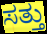
ಸತ್ತು